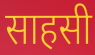
साहसी